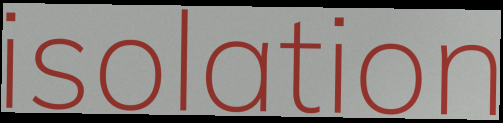
isolation